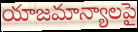
యాజమాన్యాలపై